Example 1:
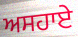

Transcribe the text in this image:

ਅਸਹਾਏ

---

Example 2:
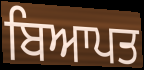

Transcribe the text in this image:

ਬਿਆਪਤ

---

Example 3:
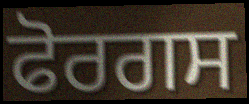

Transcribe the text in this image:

ਫੋਰਗਸ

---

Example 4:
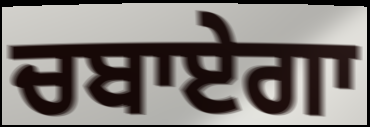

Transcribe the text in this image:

ਚਬਾਏਗਾ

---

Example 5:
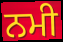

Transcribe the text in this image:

ਨਮੀ